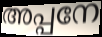
അപ്പനേ